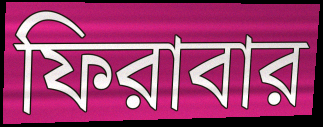
ফিরাবার